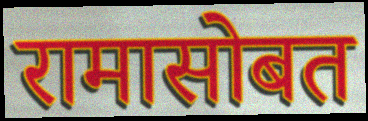
रामासोबत